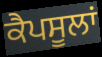
ਕੈਪਸੂਲਾਂ